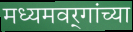
मध्यमवर्गांच्या